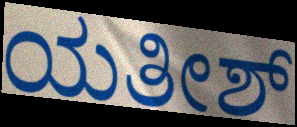
ಯತೀಶ್